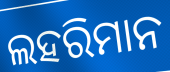
ଲହରିମାନ